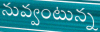
నువ్వంటున్న